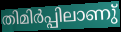
തിമിർപ്പിലാണു്